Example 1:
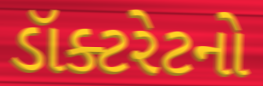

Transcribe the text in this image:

ડૉક્ટરેટનો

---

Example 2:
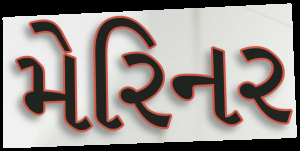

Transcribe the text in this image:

મેરિનર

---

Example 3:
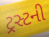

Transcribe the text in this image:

ટ્રસ્ટની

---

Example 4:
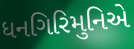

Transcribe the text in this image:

ધનગિરિમુનિએ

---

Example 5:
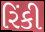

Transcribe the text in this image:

રિંકી